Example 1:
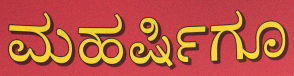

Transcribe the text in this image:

ಮಹರ್ಷಿಗೂ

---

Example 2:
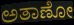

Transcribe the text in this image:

ಅತಾಣೋ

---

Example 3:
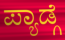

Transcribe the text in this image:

ಪ್ಯಾಡ್ಗೆ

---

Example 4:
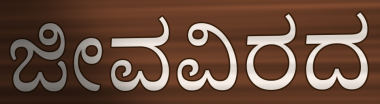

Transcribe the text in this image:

ಜೀವವಿರದ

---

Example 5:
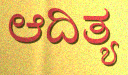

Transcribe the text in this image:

ಆದಿತ್ಯ